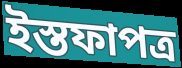
ইস্তফাপত্র